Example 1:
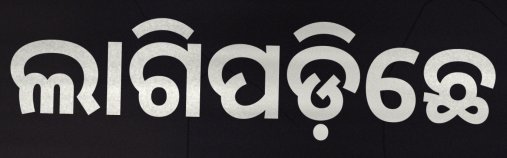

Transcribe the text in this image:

ଲାଗିପଡ଼ିଛେ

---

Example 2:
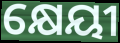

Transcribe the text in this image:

କ୍ଷେୟୀ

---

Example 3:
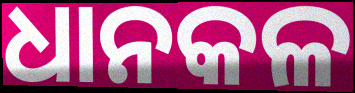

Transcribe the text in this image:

ଧାନକଳ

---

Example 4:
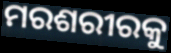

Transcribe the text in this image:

ମରଶରୀରକୁ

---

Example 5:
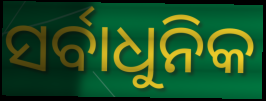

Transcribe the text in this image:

ସର୍ବାଧୁନିକ